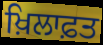
ਖ਼ਿਲਾਫ਼ਤ